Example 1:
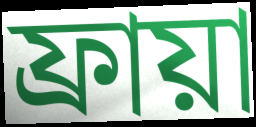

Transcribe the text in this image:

ফ্রায়া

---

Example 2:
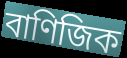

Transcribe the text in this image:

বাণিজিক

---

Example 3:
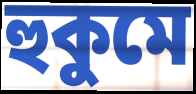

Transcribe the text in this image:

হুকুমে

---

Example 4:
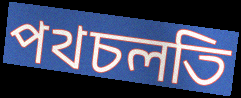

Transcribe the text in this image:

পথচলতি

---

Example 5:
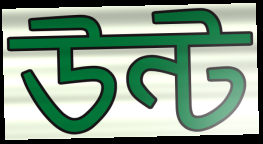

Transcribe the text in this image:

উন্ট